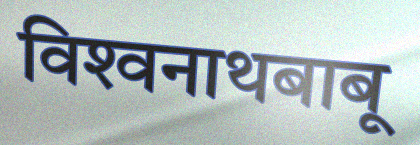
विश्‍वनाथबाबू